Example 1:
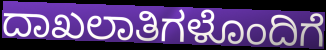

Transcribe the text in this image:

ದಾಖಲಾತಿಗಳೊಂದಿಗೆ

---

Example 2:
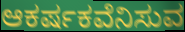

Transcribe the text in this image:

ಆಕರ್ಷಕವೆನಿಸುವ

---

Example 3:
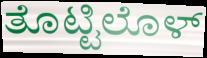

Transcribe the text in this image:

ತೊಟ್ಟಿಲೊಳ್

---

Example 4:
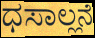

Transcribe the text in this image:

ಧಸಾಲ್ಲನೆ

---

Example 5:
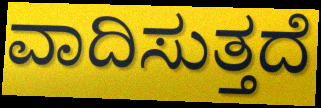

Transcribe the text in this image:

ವಾದಿಸುತ್ತದೆ